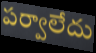
పర్వాలేదు